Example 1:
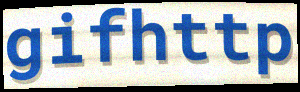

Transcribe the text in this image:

gifhttp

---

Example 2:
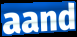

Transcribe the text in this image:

aand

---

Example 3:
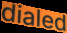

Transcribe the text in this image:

dialed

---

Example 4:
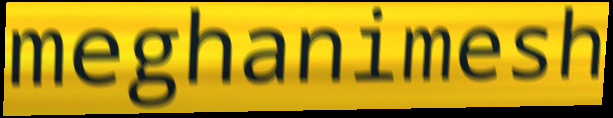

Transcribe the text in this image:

meghanimesh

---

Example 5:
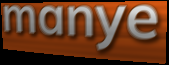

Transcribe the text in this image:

manye